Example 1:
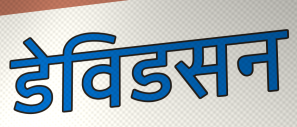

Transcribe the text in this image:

डेविडसन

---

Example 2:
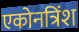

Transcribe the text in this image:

एकोनत्रिंश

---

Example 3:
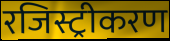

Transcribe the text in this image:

रजिस्ट्रीकरण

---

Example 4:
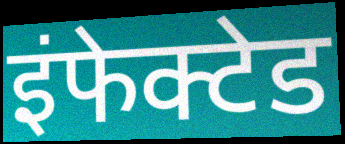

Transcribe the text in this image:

इंफेक्टेड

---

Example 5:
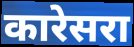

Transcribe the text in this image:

कारेसरा